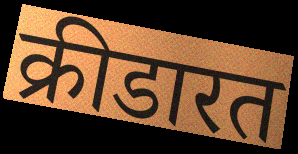
क्रीडारत